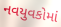
નવયુવકોમાં